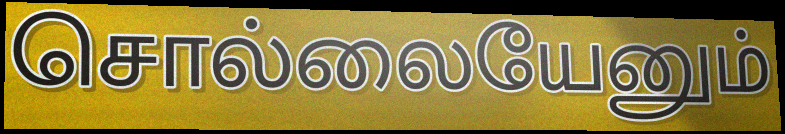
சொல்லையேனும்